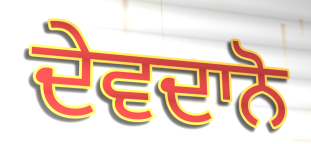
ਦੇਵਦਾਨੋ